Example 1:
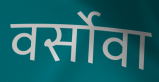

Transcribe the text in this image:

वर्सोवा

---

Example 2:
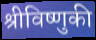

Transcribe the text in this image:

श्रीविष्णुकी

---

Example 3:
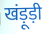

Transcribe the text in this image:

खंड़ूड़ी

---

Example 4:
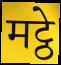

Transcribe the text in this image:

मट्ठे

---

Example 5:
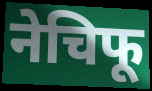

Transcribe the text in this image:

नेचिफू